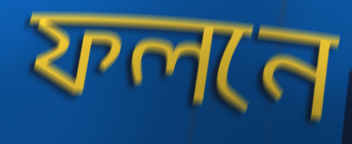
ফলনে